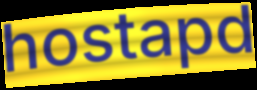
hostapd